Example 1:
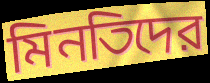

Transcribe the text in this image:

মিনতিদের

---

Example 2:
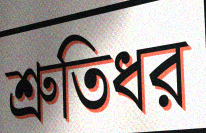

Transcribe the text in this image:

শ্রুতিধর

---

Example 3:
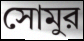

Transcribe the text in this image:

সোমুর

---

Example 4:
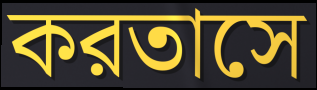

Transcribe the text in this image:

করতাসে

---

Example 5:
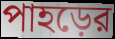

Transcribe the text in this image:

পাহড়ের